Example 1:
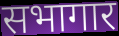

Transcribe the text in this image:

सभागार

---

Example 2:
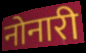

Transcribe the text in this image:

नोनारी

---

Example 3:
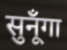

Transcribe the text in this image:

सुनूँगा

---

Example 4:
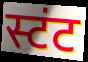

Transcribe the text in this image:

स्टंट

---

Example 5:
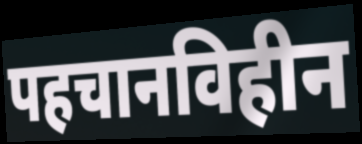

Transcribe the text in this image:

पहचानविहीन